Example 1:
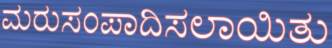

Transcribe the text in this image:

ಮರುಸಂಪಾದಿಸಲಾಯಿತು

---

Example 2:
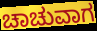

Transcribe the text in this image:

ಚಾಚುವಾಗ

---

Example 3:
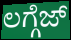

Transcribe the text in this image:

ಲಗ್ಗೆಜ್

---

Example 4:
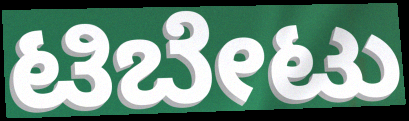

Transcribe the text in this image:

ಟಿಬೇಟು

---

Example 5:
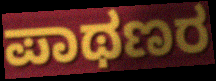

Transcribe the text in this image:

ಪಾಥಣರ